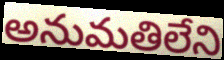
అనుమతిలేని